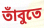
তাঁবুতে